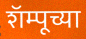
शॅम्पूच्या